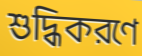
শুদ্ধিকরণে